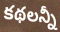
కథలన్నీ